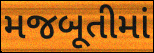
મજબૂતીમાં